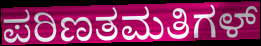
ಪರಿಣತಮತಿಗಳ್